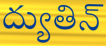
ద్యుతిన్